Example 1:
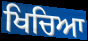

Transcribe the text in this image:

ਖਿਚਿਆ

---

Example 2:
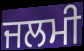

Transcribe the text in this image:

ਜਲਮੀ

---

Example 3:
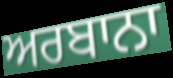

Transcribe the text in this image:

ਅਰਬਾਨਾ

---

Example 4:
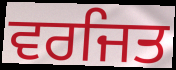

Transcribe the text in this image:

ਵਰਜਿਤ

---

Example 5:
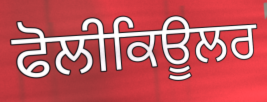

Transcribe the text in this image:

ਫੋਲੀਕਿਊਲਰ